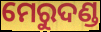
ମେରୁଦଣ୍ଡ